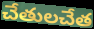
చేతులచేత